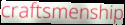
craftsmenship